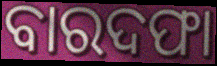
ବାରଦଫା